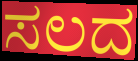
ಸಲದ